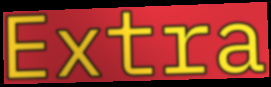
Extra